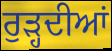
ਰੁੜ੍ਹਦੀਆਂ